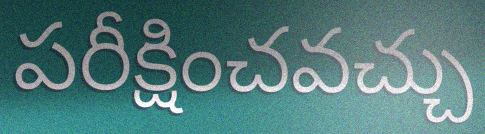
పరీక్షించవచ్చు